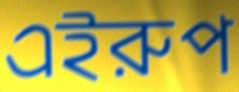
এইরুপ